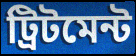
ট্রিটমেন্ট